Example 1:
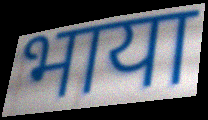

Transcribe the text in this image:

भाया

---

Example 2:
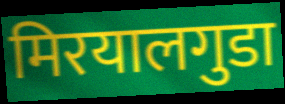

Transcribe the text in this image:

मिरयालगुडा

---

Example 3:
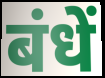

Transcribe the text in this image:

बंधें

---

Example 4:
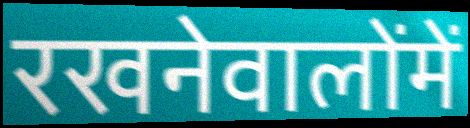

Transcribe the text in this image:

रखनेवालोंमें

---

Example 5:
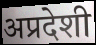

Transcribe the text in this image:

अप्रदेशी